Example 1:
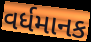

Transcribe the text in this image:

વર્ધમાનક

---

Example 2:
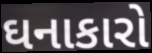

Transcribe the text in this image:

ઘનાકારો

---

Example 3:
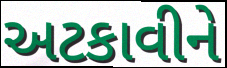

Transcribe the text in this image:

અટકાવીને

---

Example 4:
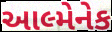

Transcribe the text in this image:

આલ્મેનેક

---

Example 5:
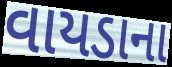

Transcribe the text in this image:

વાયડાના